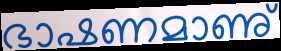
ഭാഷണമാണു്